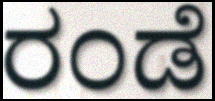
ರಂಡೆ